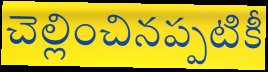
చెల్లించినప్పటికీ